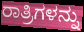
ರಾತ್ರಿಗಳನ್ನು